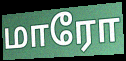
மாரோ